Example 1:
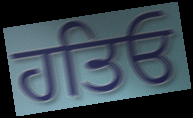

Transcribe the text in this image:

ਹਤਿਓ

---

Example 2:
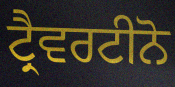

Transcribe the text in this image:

ਟ੍ਰੈਵਰਟੀਨੋ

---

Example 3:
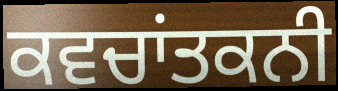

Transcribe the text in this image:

ਕਵਚਾਂਤਕਨੀ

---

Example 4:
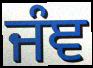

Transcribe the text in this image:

ਜੰਞ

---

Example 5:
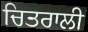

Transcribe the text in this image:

ਚਿਤਰਾਲੀ